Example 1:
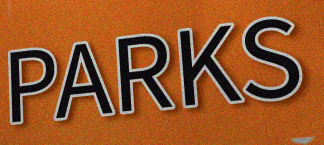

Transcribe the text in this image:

PARKS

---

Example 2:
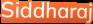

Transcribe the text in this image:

Siddharaj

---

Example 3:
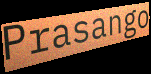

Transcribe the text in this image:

Prasango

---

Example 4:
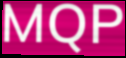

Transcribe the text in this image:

MQP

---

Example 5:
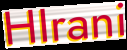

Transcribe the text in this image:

HIrani